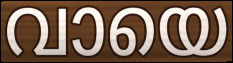
വായെ